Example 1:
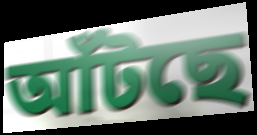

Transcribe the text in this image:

আঁটছে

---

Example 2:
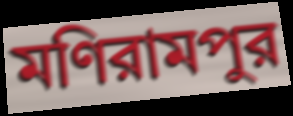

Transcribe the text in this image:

মণিরামপুর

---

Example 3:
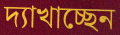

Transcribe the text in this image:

দ্যাখাচ্ছেন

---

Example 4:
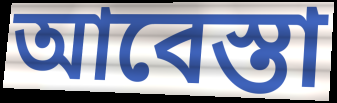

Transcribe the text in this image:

আবেস্তা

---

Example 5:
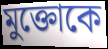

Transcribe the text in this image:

মুক্তোকে